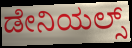
ಡೇನಿಯಲ್ಸ್